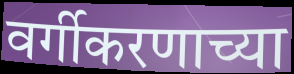
वर्गीकरणाच्या